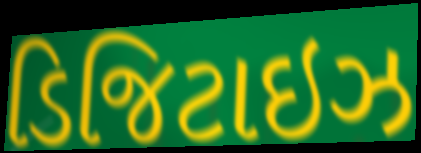
ડિજિટાઇઝ